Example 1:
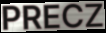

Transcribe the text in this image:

PRECZ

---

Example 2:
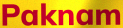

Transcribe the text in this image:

Paknam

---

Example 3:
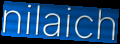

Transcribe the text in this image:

nilaich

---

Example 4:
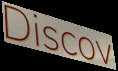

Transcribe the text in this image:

Discov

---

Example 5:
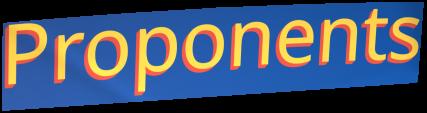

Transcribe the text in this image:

Proponents